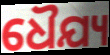
ଧୈଯ୍ୟ